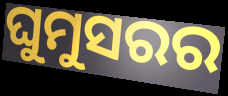
ଘୁମୁସରର